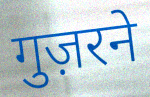
गुज़रने